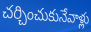
చర్చించుకునేవాళ్లు